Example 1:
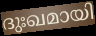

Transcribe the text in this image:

ദുഃഖമായി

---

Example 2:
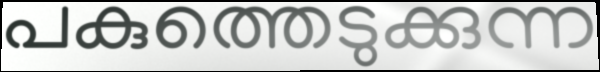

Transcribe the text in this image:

പകുത്തെടുക്കുന്ന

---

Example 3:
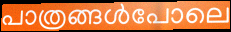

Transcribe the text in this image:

പാത്രങ്ങൾപോലെ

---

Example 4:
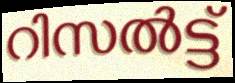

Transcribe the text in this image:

റിസൽട്ട്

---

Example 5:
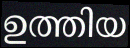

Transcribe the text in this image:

ഉത്തിയ